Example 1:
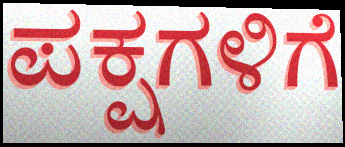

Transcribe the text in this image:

ಪಕ್ಷಗಳಿಗೆ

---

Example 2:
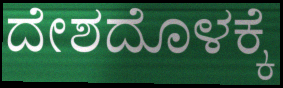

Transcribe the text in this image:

ದೇಶದೊಳಕ್ಕೆ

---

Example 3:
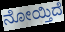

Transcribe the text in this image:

ನೋಯ್ತಿದೆ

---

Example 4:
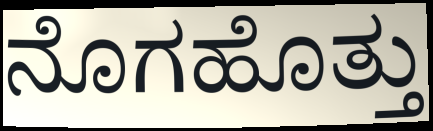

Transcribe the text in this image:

ನೊಗಹೊತ್ತು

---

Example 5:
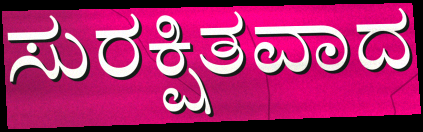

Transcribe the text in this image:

ಸುರಕ್ಷಿತವಾದ